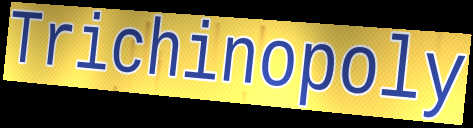
Trichinopoly